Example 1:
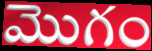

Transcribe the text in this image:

మొగం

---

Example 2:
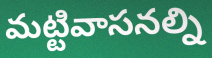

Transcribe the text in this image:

మట్టివాసనల్ని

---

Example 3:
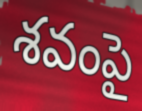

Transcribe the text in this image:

శవంపై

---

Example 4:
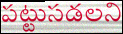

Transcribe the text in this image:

పట్టుసడలని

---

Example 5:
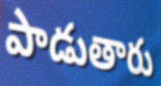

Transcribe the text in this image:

పాడుతారు